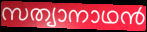
സത്യാനാഥൻ